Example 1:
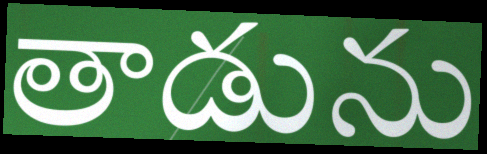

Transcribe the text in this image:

తాడును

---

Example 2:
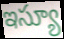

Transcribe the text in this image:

ఇస్యూ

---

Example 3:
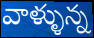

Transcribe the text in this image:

వాళ్ళున్న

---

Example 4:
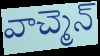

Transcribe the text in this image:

వాచ్మెన్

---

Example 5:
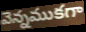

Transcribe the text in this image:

వెన్నముకగా